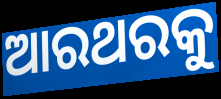
ଆରଥରକୁ